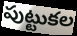
పుట్టుకల